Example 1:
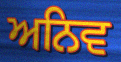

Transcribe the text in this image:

ਅਨਿਵ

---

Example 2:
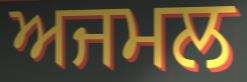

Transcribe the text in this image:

ਅਜਮਲ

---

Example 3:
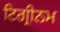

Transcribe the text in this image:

ਟਿਗ੍ਰੀਨਮ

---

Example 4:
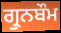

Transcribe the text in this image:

ਗ੍ਰੁਨਬੌਮ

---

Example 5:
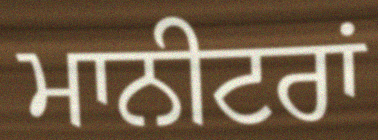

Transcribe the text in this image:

ਮਾਨੀਟਰਾਂ